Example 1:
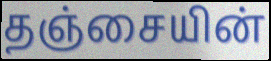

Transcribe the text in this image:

தஞ்சையின்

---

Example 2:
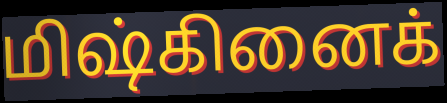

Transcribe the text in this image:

மிஷ்கினைக்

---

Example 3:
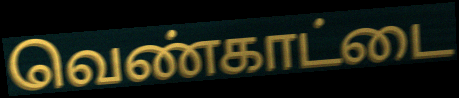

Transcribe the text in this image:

வெண்காட்டை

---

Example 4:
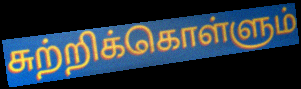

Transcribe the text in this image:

சுற்றிக்கொள்ளும்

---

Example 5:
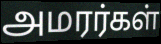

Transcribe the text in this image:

அமரர்கள்